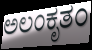
ಅಲಂಕೃತಂ